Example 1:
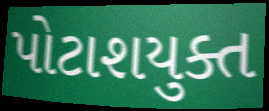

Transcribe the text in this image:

પોટાશયુક્ત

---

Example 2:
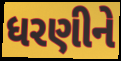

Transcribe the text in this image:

ધરણીને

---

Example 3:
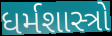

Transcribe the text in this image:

ધર્મશાસ્ત્રો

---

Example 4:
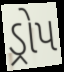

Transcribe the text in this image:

ડ્રોપ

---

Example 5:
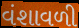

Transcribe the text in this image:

વંશાવળી